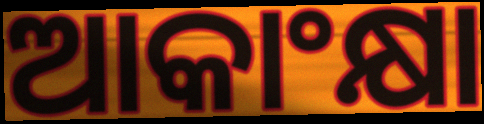
ଆକାଂକ୍ଷା